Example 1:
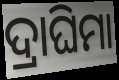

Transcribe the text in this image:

ଦ୍ରାଘିମା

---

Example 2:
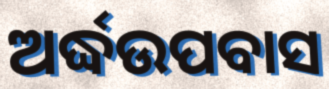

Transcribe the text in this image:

ଅର୍ଦ୍ଧଉପବାସ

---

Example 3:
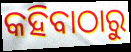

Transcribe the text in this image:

କହିବାଠାରୁ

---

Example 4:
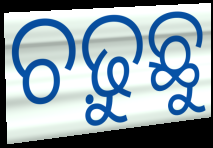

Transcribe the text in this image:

ଚଢ଼ୁଛୁ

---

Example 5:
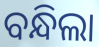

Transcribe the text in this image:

ବନ୍ଧିଲା